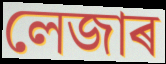
লেজাৰ